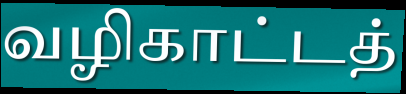
வழிகாட்டத்